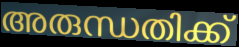
അരുന്ധതിക്ക്